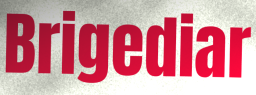
Brigediar